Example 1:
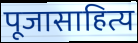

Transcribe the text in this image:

पूजासाहित्य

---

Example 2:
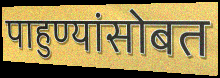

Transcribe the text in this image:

पाहुण्यांसोबत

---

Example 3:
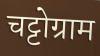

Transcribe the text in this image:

चट्टोग्राम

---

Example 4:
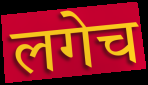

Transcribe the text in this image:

लगेच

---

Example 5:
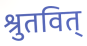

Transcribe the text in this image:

श्रुतवित्